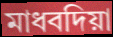
মাধবদিয়া